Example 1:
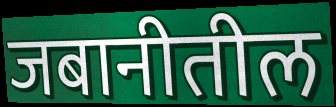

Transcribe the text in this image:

जबानीतील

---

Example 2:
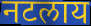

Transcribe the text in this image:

नटलाय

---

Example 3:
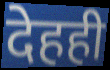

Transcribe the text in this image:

देहही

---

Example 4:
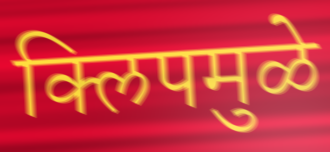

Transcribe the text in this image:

क्लिपमुळे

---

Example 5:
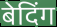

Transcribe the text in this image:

बेदिंग